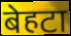
बेहटा